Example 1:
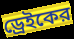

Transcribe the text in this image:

ড্রেইকের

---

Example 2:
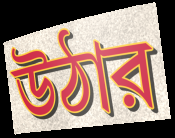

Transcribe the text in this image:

উঠার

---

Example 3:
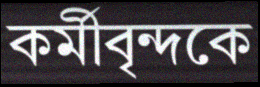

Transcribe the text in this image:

কর্মীবৃন্দকে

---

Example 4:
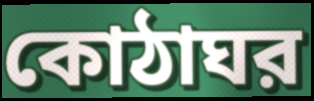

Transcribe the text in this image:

কোঠাঘর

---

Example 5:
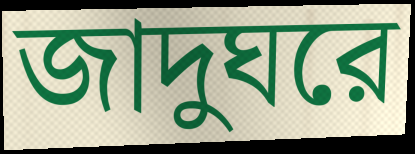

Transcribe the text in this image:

জাদুঘরে